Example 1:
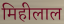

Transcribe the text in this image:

मिहीलाल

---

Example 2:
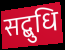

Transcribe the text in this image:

सद्बुधि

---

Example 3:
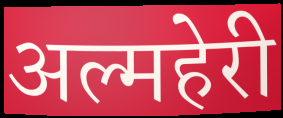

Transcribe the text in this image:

अल्महेरी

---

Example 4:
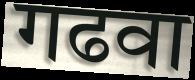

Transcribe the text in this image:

गढवा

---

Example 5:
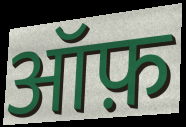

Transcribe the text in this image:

ऑफ़